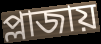
প্লাজায়